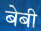
बेबी